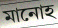
মানোহ